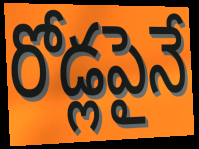
రోడ్లపైనే